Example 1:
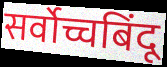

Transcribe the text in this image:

सर्वोच्चबिंदू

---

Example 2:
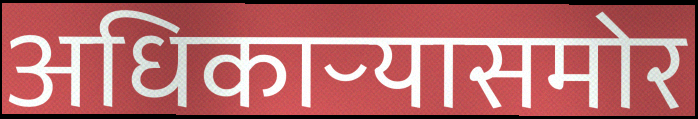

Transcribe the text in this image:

अधिकाऱ्यासमोर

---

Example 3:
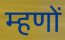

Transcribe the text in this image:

म्हणों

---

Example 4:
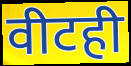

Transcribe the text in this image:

वीटही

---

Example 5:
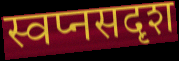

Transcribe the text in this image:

स्वप्नसदृश